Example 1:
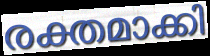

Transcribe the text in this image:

രക്തമാക്കി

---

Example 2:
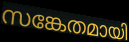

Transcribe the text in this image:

സങ്കേതമായി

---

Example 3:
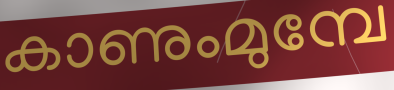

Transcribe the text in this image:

കാണുംമുമ്പേ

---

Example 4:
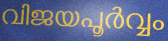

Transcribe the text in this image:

വിജയപൂർവ്വം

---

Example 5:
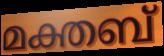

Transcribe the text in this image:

മക്തബ്